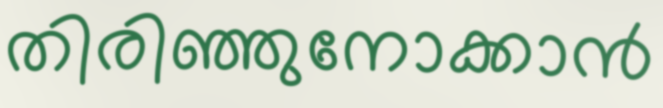
തിരിഞ്ഞുനോക്കാൻ